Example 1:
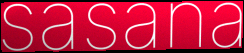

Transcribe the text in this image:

sasana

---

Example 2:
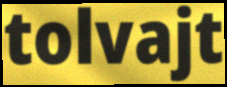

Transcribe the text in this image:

tolvajt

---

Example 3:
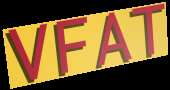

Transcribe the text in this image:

VFAT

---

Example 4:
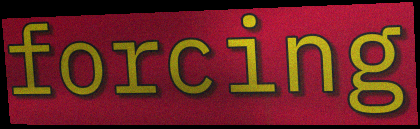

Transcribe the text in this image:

forcing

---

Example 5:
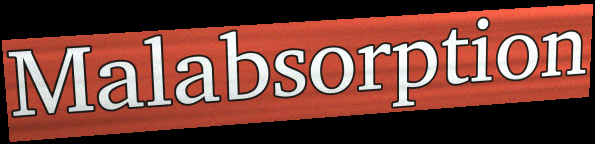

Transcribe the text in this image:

Malabsorption